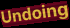
Undoing